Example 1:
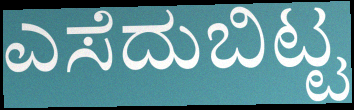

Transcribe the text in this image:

ಎಸೆದುಬಿಟ್ಟ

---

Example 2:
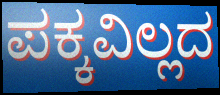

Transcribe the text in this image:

ಪಕ್ಕವಿಲ್ಲದ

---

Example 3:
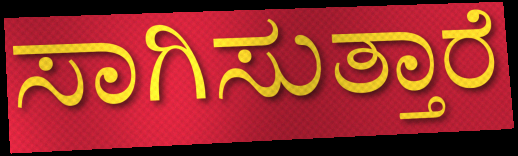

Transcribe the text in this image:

ಸಾಗಿಸುತ್ತಾರೆ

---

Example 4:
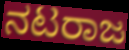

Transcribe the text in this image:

ನಟರಾಜ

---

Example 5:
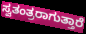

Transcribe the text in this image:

ಸ್ವತಂತ್ರರಾಗುತ್ತಾರೆ